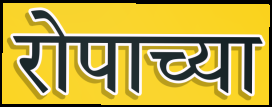
रोपाच्या